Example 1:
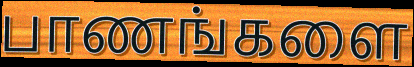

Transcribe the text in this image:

பாணங்களை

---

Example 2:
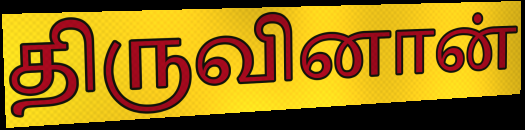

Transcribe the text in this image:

திருவினான்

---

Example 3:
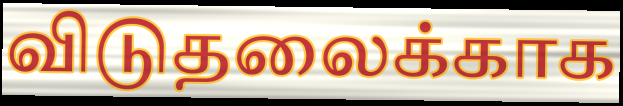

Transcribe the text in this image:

விடுதலைக்காக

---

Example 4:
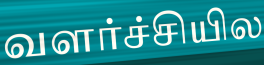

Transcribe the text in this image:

வளர்ச்சியில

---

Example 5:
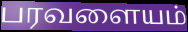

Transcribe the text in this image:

பரவளையம்